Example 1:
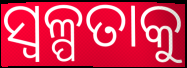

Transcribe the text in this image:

ସ୍ଵଳ୍ପତାକୁ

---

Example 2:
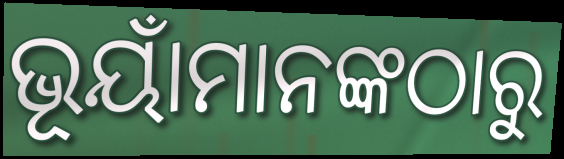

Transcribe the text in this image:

ଭୂୟାଁମାନଙ୍କଠାରୁ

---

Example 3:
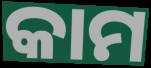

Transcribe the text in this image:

କାମ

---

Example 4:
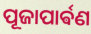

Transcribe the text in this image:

ପୂଜାପାର୍ଵଣ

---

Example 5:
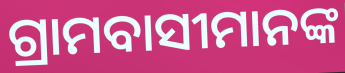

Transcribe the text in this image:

ଗ୍ରାମବାସୀମାନଙ୍କ